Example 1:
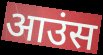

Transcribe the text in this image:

आउंस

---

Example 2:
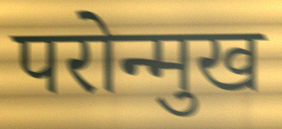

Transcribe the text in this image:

परोन्मुख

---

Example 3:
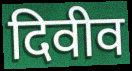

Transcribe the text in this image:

दिवीव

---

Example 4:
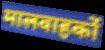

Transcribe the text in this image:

मालवाहकों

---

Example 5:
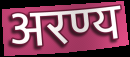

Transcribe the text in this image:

अरण्य